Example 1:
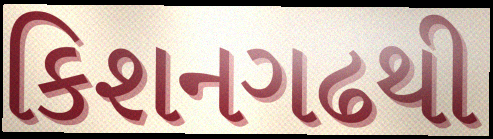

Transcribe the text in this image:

કિશનગઢથી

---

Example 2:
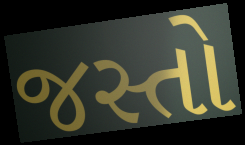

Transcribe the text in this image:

જસ્તો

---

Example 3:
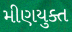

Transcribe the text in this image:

મીણયુક્ત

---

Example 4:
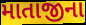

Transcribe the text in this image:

માતાજીના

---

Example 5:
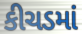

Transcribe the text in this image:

કીચડમાં